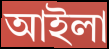
আইলা